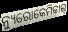
ନ୍ୟୁରୋକେମିକାଲ୍